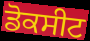
ਡੋਕਸੀਟ